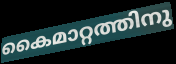
കൈമാറ്റത്തിനു